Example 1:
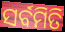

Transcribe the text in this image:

ସର୍ବମିତି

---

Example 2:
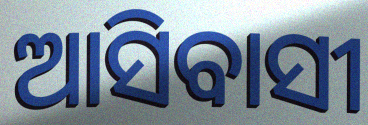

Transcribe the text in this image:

ଆସିବାସୀ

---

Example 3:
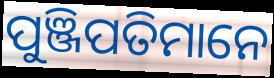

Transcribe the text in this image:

ପୁଞ୍ଜିପତିମାନେ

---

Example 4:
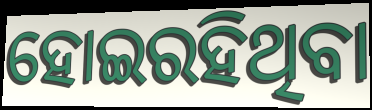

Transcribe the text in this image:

ହୋଇରହିଥିବା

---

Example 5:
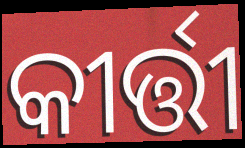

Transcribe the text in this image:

କୀର୍ତ୍ତୀ